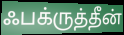
ஃபக்ருத்தீன்